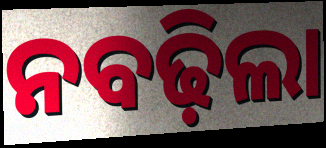
ନବଢ଼ିଲା